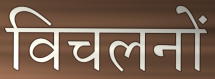
विचलनों